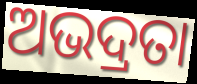
ଅଭଦ୍ରତା